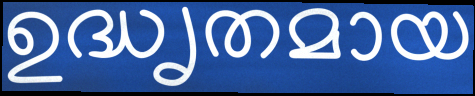
ഉദ്ധൃതമായ